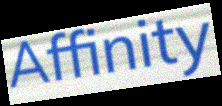
Affinity